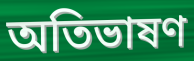
অতিভাষণ